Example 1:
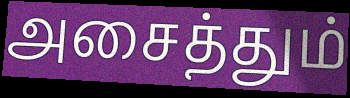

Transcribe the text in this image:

அசைத்தும்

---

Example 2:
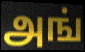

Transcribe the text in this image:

அங்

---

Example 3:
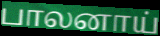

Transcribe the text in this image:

பாலனாய்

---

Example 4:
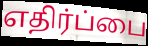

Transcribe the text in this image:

எதிர்ப்பை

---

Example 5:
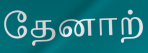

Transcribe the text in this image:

தேனாற்